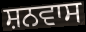
ਸ਼ਨਵਾਸ